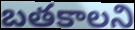
బతకాలని